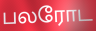
பலரோட